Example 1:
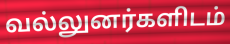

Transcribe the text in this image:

வல்லுனர்களிடம்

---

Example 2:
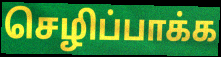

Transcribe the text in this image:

செழிப்பாக்க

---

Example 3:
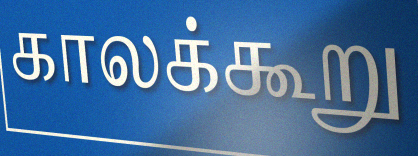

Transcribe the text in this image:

காலக்கூறு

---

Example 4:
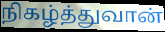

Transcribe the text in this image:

நிகழ்த்துவான்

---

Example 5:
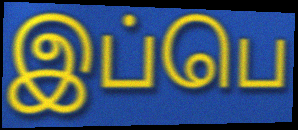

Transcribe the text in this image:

இப்பெ